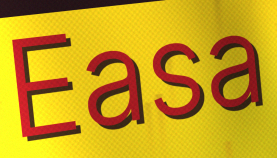
Easa